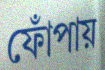
ফোঁপায়